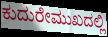
ಕುದುರೇಮುಖದಲ್ಲಿ